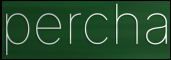
percha